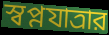
স্বপ্নযাত্রার